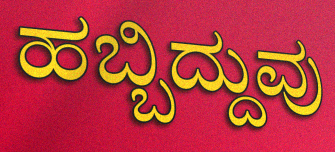
ಹಬ್ಬಿದ್ದುವು